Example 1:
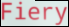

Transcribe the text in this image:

Fiery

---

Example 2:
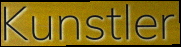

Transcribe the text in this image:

Kunstler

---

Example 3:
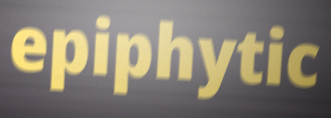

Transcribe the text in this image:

epiphytic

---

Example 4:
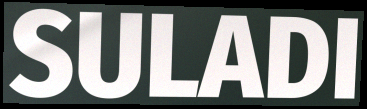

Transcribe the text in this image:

SULADI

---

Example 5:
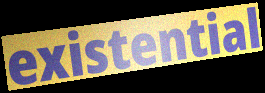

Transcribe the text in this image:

existential